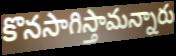
కొనసాగిస్తామన్నారు